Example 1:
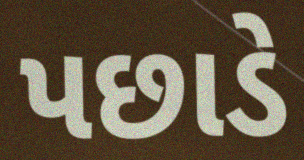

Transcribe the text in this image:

પછાડે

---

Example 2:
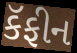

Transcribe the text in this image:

કૅફીન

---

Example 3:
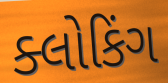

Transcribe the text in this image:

ક્લોકિંગ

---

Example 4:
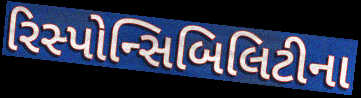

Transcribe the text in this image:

રિસ્પોન્સિબિલિટીના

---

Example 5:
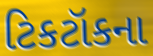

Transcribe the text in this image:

ટિકટૉકના